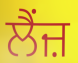
ਲੈਂਜ਼